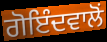
ਗੋਇੰਦਵਾਲੋਂ